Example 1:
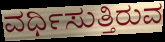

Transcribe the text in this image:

ವರ್ಧಿಸುತ್ತಿರುವ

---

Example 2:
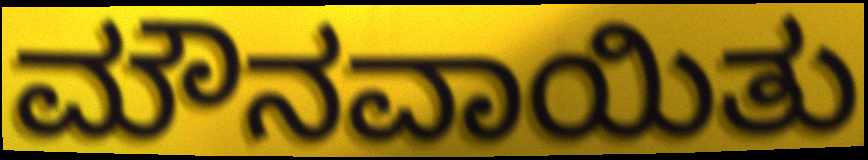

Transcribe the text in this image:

ಮೌನವಾಯಿತು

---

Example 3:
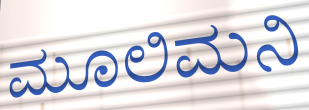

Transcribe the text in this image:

ಮೂಲಿಮನಿ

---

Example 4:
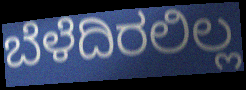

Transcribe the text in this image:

ಬೆಳೆದಿರಲಿಲ್ಲ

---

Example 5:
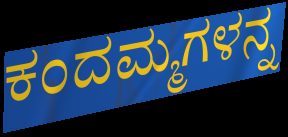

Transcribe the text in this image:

ಕಂದಮ್ಮಗಳನ್ನ